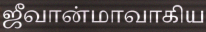
ஜீவான்மாவாகிய